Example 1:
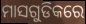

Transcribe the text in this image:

ମାସଗୁଡିକରେ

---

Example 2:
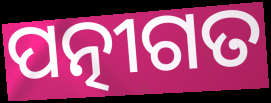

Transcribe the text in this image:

ପତ୍ନୀଗତ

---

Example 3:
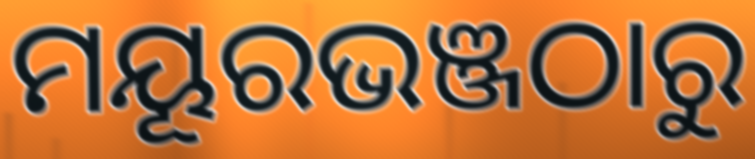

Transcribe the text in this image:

ମୟୂରଭଞ୍ଜଠାରୁ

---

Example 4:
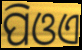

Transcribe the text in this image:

ପିଓଏ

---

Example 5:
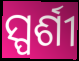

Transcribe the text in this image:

ସ୍ପର୍ଶୀ